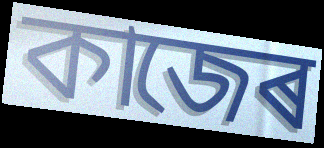
কাজেৰ